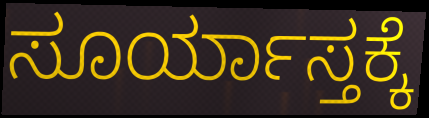
ಸೂರ್ಯಾಸ್ತಕ್ಕೆ